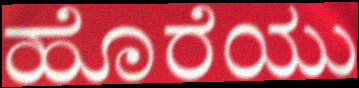
ಹೊರೆಯು